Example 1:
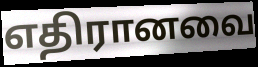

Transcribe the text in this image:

எதிரானவை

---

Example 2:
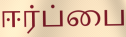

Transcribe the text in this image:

ஈர்ப்பை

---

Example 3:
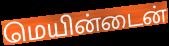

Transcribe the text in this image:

மெயின்டைன்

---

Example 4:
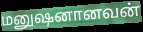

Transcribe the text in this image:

மனுஷனானவன்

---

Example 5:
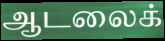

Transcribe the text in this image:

ஆடலைக்